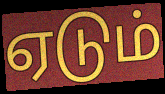
ஏடும்